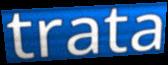
trata